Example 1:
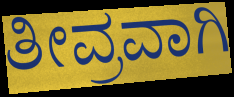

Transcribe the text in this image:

ತೀವ್ರವಾಗಿ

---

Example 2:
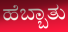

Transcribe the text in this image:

ಹೆಬ್ಬಾತು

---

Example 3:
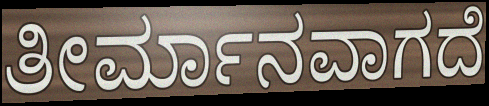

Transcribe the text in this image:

ತೀರ್ಮಾನವಾಗದೆ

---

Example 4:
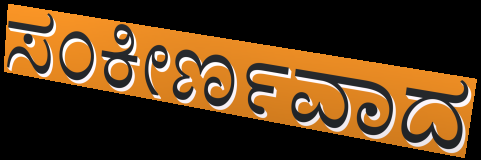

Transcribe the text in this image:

ಸಂಕೀರ್ಣವಾದ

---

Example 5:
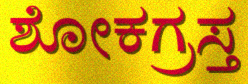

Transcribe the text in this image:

ಶೋಕಗ್ರಸ್ತ